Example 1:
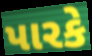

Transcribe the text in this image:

પારકે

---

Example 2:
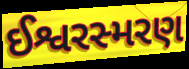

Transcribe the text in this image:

ઈશ્વરસ્મરણ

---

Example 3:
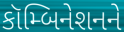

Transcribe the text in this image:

કૉમ્બિનેશનને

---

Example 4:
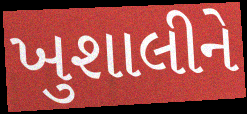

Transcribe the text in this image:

ખુશાલીને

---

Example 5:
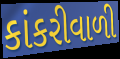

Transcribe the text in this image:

કાંકરીવાળી